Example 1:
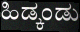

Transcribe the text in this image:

ಹಿಡ್ಕಂಡು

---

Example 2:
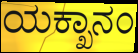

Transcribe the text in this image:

ಯಕ್ಖಾನಂ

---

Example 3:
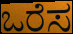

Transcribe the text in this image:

ಒರೆಸ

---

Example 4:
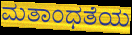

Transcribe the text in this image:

ಮತಾಂಧತೆಯ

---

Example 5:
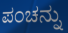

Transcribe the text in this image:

ಪಂಚನ್ನು